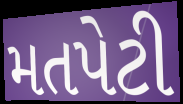
મતપેટી